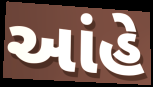
આંહે